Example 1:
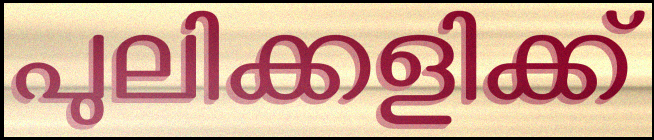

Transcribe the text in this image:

പുലിക്കളിക്ക്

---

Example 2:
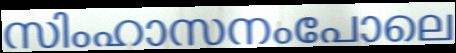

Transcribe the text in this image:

സിംഹാസനംപോലെ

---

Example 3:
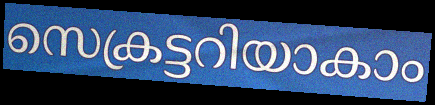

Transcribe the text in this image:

സെക്രട്ടറിയാകാം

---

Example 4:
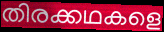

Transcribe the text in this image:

തിരക്കഥകളെ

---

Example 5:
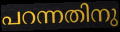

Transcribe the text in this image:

പറന്നതിനു